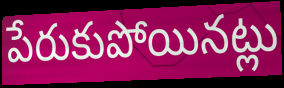
పేరుకుపోయినట్లు